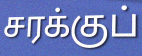
சரக்குப்